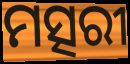
ମତ୍ସରୀ